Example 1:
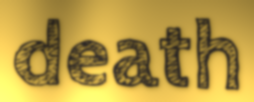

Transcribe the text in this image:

death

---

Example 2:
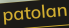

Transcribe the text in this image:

patolan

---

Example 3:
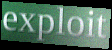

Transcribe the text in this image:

exploit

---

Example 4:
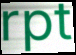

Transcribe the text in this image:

rpt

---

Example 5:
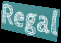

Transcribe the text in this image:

Regal